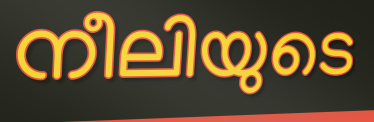
നീലിയുടെ